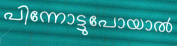
പിന്നോട്ടുപോയാൽ